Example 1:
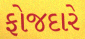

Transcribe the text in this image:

ફોજદારે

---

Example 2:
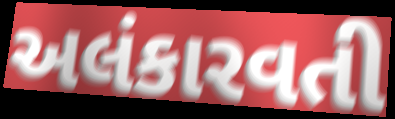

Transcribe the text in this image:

અલંકારવતી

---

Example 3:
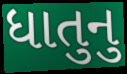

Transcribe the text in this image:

ધાતુનુ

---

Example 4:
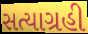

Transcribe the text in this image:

સત્યાગ્રહી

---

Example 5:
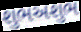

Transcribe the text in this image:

શુભઅશુભ